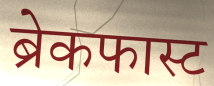
ब्रेकफास्ट